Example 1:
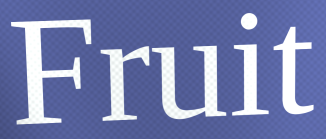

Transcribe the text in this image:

Fruit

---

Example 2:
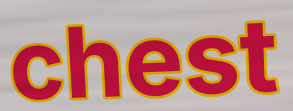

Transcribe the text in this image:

chest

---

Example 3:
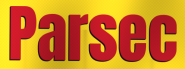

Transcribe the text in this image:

Parsec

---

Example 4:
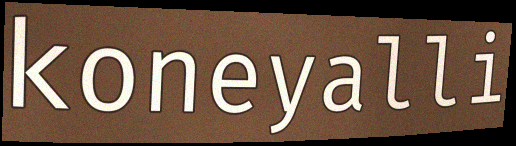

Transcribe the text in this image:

koneyalli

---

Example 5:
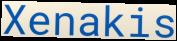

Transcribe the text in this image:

Xenakis